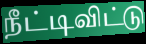
நீட்டிவிட்டு